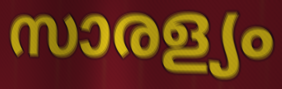
സാരള്യം